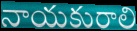
నాయకురాలి